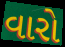
વારો